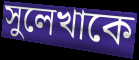
সুলেখাকে